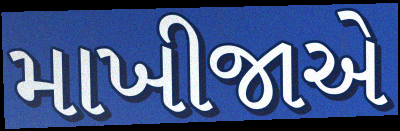
માખીજાએ